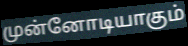
முன்னோடியாகும்